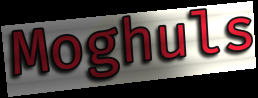
Moghuls